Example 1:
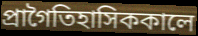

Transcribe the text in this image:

প্রাগৈতিহাসিককালে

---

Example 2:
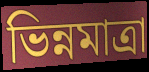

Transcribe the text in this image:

ভিন্নমাত্রা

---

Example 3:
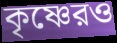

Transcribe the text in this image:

কৃষ্ণেরও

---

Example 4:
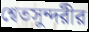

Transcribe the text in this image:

শ্বেতসুন্দরীর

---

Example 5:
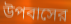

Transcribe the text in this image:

উপবাসের